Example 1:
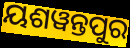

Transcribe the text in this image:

ୟଶୱନ୍ତପୁର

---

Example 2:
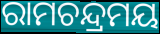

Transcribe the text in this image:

ରାମଚନ୍ଦ୍ରମୟ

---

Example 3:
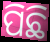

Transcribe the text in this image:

ପିଛି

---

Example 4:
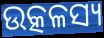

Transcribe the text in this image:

ଉତ୍କଳସ୍ୟ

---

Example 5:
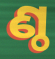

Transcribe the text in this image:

ଣ୍ଠ